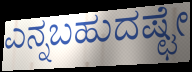
ಎನ್ನಬಹುದಷ್ಟೇ